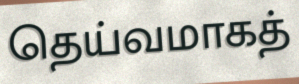
தெய்வமாகத்